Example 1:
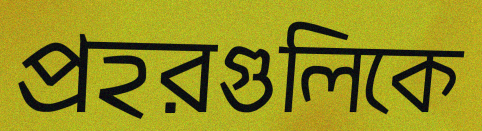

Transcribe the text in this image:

প্রহরগুলিকে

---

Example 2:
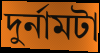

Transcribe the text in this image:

দুর্নামটা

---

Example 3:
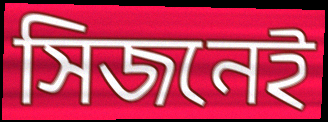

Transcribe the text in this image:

সিজনেই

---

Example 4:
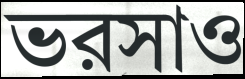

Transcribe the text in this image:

ভরসাও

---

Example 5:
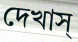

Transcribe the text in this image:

দেখাস্